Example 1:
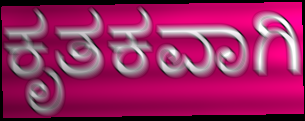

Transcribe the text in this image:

ಕೃತಕವಾಗಿ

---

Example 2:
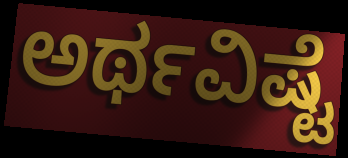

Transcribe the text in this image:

ಅರ್ಥವಿಷ್ಟೆ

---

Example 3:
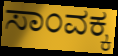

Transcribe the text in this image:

ಸಾಂವಕ್ಕ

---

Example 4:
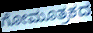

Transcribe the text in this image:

ಗೋಮೂತ್ರಕದ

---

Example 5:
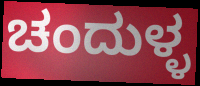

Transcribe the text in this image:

ಚಂದುಳ್ಳ